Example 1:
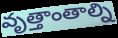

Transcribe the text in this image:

వృత్తాంతాల్ని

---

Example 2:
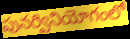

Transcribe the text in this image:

పునర్వినియోగంలో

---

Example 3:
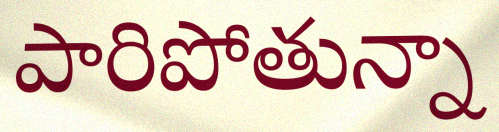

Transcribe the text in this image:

పారిపోతున్నా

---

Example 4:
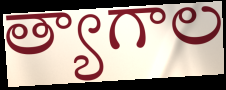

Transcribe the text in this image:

త్యాగాల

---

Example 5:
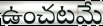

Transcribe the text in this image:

ఉంచటమే